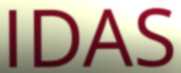
IDAS